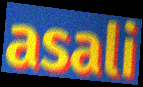
asali